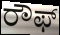
ರೌಫ್